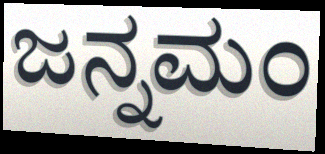
ಜನ್ನಮಂ